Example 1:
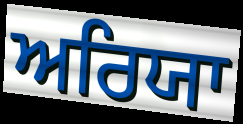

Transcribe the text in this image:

ਅਰਿਯਾ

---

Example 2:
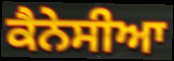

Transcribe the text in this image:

ਕੈਨੇਸੀਆ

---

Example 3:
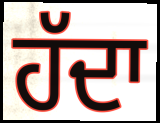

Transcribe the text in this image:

ਹੱਦਾ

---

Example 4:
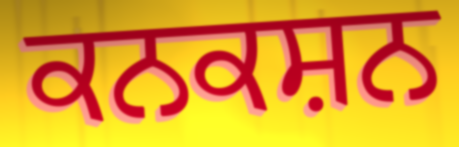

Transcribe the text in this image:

ਕਨਕਸ਼ਨ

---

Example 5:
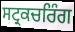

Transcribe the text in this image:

ਸਟ੍ਰਕਚਰਿੰਗ